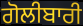
ਗੋਲੀਬਾਰੀ